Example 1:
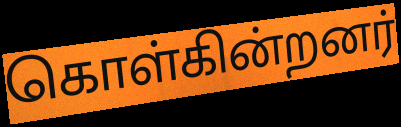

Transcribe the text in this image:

கொள்கின்றனர்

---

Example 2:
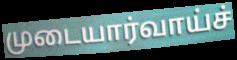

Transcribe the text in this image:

முடையார்வாய்ச்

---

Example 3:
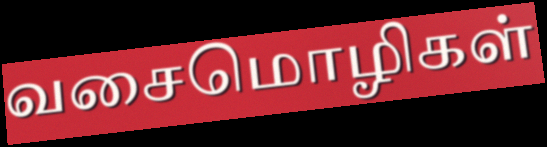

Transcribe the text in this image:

வசைமொழிகள்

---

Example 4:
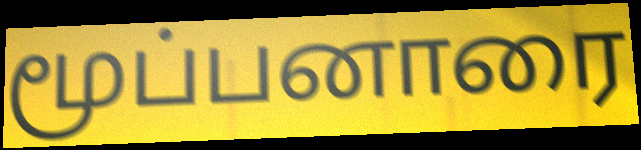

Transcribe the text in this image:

மூப்பனாரை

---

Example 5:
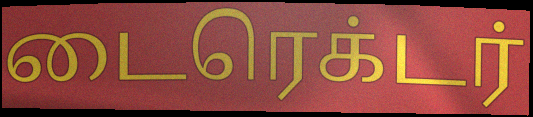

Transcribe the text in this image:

டைரெக்டர்